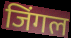
जिंगल